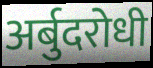
अर्बुदरोधी